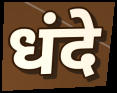
धंदे